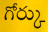
గోర్కు